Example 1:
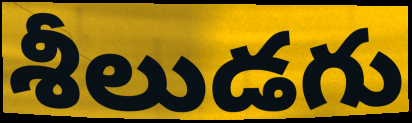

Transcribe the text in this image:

శీలుడగు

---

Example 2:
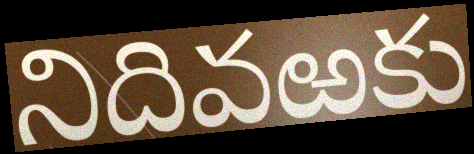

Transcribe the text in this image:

నిదివఱకు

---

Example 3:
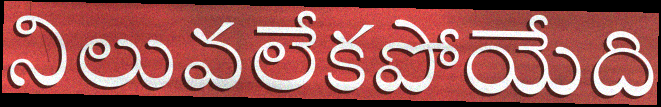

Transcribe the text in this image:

నిలువలేకపోయేది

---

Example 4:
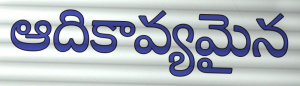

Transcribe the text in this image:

ఆదికావ్యమైన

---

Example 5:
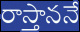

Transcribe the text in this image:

రాస్తాననే